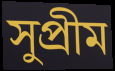
সুপ্রীম